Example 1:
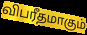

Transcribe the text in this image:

விபரீதமாகும்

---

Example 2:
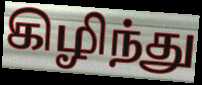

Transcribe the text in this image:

கிழிந்து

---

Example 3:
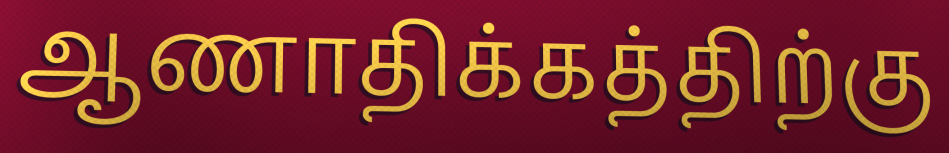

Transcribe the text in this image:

ஆணாதிக்கத்திற்கு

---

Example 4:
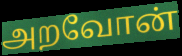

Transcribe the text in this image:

அறவோன்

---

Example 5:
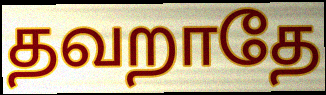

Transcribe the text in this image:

தவறாதே